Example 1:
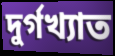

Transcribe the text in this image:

দুর্গখ্যাত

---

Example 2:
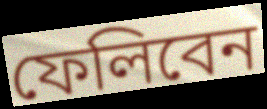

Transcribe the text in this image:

ফেলিবেন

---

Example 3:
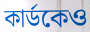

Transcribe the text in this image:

কার্ডকেও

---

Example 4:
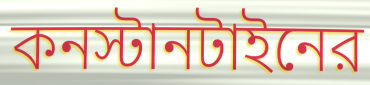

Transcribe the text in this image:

কনস্টানটাইনের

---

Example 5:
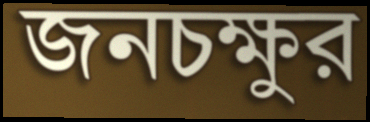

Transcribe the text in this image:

জনচক্ষুর